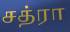
சத்ரா